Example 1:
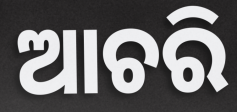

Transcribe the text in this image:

ଆଚରି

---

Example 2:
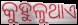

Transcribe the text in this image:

କୁହୁଳୁଥାଏ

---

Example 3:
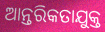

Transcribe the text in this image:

ଆନ୍ତରିକତାଯୁକ୍ତ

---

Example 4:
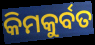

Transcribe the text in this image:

କିମକୁର୍ବତ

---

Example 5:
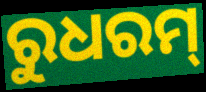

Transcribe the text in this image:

ରୁଧରମ୍